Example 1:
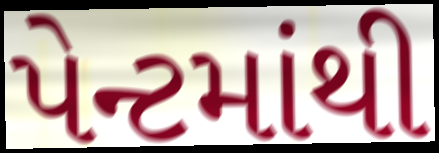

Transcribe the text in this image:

પેન્ટમાંથી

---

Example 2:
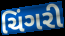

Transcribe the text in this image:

ચિંગરી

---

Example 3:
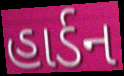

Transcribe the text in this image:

હાર્ડન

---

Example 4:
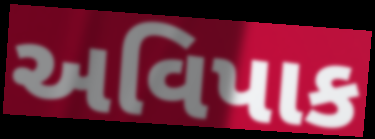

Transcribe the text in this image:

અવિપાક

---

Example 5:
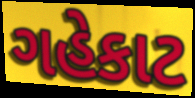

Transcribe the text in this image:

ગહેકાટ